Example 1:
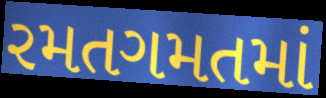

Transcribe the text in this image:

રમતગમતમાં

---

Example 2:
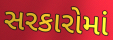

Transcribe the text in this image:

સરકારોમાં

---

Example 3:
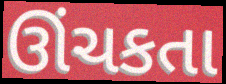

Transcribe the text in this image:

ઊંચકતા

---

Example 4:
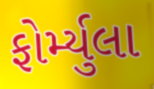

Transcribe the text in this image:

ફોર્મ્યુલા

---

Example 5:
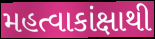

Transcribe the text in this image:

મહત્વાકાંક્ષાથી